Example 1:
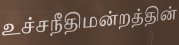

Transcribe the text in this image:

உச்சநீதிமன்றத்தின்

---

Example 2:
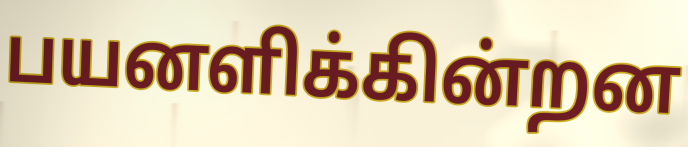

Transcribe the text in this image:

பயனளிக்கின்றன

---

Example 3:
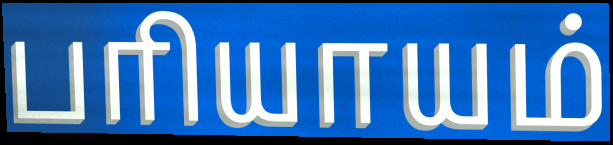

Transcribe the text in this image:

பரியாயம்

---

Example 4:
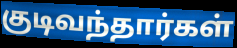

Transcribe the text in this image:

குடிவந்தார்கள்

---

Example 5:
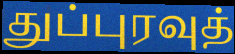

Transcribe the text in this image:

துப்புரவுத்